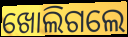
ଖୋଲିଗଲେ